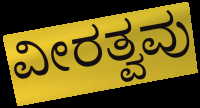
ವೀರತ್ವವು